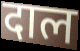
दाल